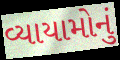
વ્યાયામોનું